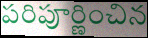
పరిపూర్ణించిన